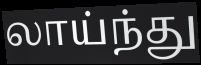
லாய்ந்து